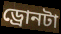
ড্রোনটা